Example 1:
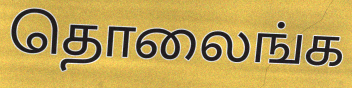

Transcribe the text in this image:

தொலைங்க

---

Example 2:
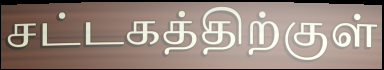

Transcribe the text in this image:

சட்டகத்திற்குள்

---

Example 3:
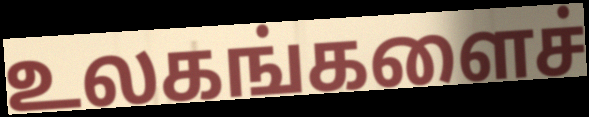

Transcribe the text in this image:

உலகங்களைச்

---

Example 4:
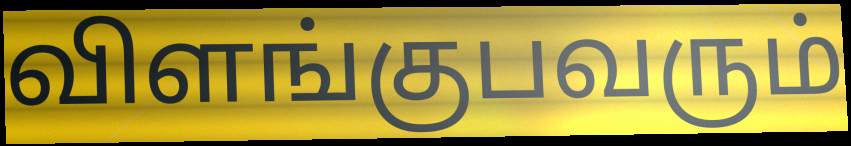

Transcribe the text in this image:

விளங்குபவரும்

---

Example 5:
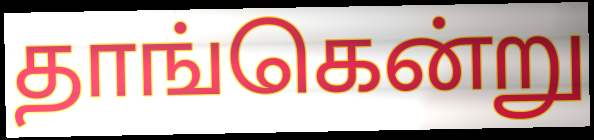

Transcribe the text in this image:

தாங்கென்று